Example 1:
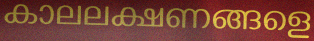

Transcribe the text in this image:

കാലലക്ഷണങ്ങളെ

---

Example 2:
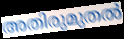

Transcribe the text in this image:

അതിരുമുതൽ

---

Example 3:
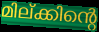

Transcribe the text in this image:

മില്ക്കിന്റെ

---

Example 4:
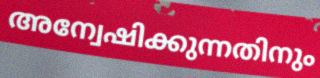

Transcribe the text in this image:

അന്വേഷിക്കുന്നതിനും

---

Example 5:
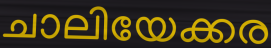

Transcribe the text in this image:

ചാലിയേക്കര